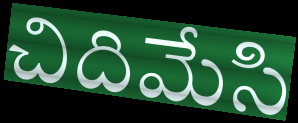
చిదిమేసి